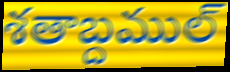
శతాబ్దముల్